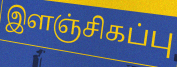
இளஞ்சிகப்பு